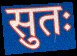
सुतः